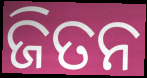
ଜିତନ